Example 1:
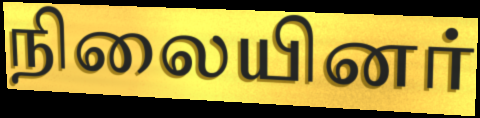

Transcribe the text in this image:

நிலையினர்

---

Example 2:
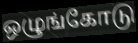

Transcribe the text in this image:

ஒழுங்கோடு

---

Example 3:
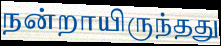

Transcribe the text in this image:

நன்றாயிருந்தது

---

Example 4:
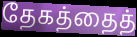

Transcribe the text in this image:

தேகத்தைத்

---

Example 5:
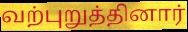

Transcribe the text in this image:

வற்புறுத்தினார்